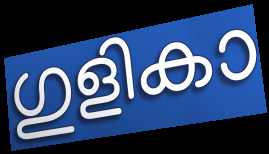
ഗുളികാ